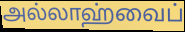
அல்லாஹ்வைப்